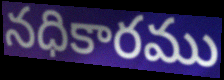
నధికారము